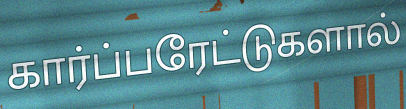
கார்ப்பரேட்டுகளால்